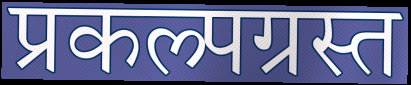
प्रकल्पग्रस्त